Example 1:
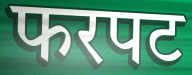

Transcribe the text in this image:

फरपट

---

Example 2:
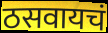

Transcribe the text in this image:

ठसवायचं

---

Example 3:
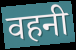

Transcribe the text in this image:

वहनी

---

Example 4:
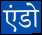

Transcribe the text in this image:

एंडो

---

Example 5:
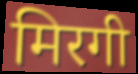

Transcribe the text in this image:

मिरगी